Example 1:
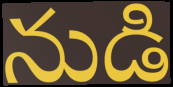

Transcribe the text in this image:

నుడి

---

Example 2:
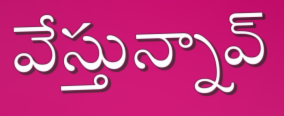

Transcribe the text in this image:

వేస్తున్నావ్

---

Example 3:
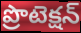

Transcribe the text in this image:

ప్రొటెక్షన్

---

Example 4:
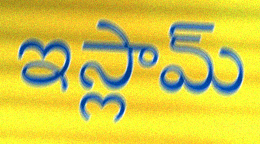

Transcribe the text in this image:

ఇస్లామ్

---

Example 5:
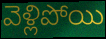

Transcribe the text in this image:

వెళ్లిపోయి